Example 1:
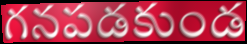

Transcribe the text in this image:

గనపడకుండ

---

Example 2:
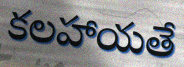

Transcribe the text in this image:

కలహాయతే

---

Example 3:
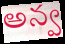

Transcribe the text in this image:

అన్వ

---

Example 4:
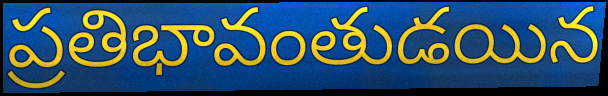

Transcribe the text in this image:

ప్రతిభావంతుడయిన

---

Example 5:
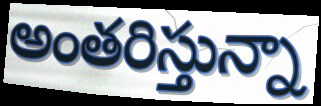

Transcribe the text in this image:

అంతరిస్తున్నా